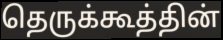
தெருக்கூத்தின்